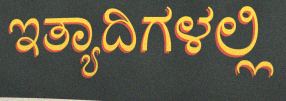
ಇತ್ಯಾದಿಗಳಲ್ಲಿ